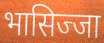
भासिज्जा